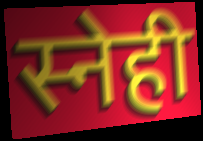
स्नेही